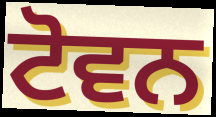
ਟੋਵਨ